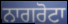
ਨਾਗਰੋਟਾ